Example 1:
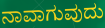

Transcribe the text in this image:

ನಾವಾಗುವುದು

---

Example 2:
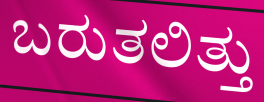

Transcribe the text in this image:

ಬರುತಲಿತ್ತು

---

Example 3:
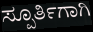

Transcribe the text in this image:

ಸ್ಪೂರ್ತಿಗಾಗಿ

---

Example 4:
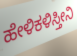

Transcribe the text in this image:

ಹೇಳಿಕಳಿಸ್ತೀನಿ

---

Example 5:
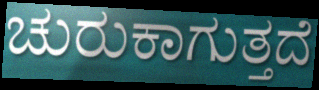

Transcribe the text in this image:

ಚುರುಕಾಗುತ್ತದೆ